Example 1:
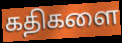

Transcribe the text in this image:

கதிகளை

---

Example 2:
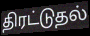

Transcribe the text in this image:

திரட்டுதல்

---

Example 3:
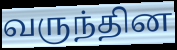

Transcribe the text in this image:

வருந்தின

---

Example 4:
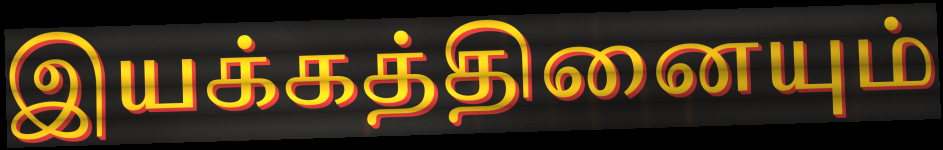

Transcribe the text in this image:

இயக்கத்தினையும்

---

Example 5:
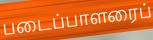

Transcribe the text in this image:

படைப்பாளரைப்